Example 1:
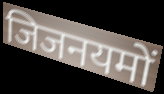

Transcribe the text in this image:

जिजनयमों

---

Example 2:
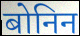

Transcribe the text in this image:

बोनिन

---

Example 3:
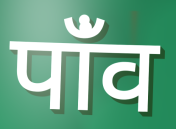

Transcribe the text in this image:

पांँव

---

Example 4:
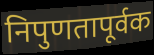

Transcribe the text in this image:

निपुणतापूर्वक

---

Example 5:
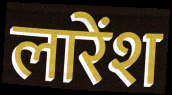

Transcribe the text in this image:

लारेंश